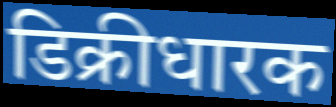
डिक्रीधारक